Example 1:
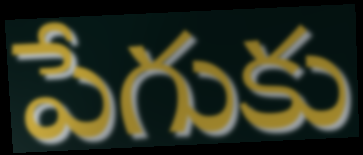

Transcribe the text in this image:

పేగుకు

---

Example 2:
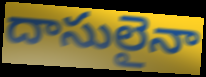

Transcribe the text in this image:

దాసులైనా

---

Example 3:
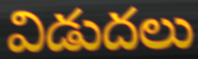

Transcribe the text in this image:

విడుదలు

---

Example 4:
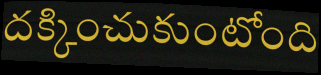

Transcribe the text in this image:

దక్కించుకుంటోంది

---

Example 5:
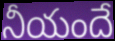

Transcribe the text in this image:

నీయందే